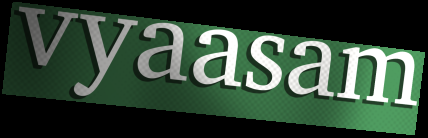
vyaasam